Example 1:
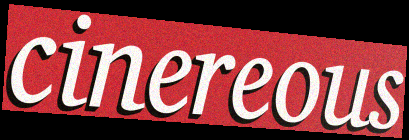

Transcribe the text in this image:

cinereous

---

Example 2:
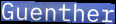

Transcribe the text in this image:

Guenther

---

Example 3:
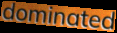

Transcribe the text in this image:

dominated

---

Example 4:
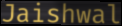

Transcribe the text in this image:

Jaishwal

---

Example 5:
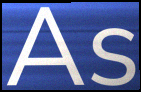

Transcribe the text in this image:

As